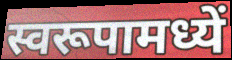
स्वरूपामध्यें